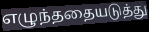
எழுந்ததையடுத்து